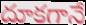
దూకగానే